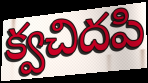
క్వచిదపి